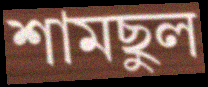
শামছুল